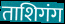
ताशिगंग